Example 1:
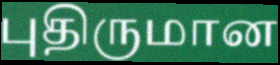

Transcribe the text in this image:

புதிருமான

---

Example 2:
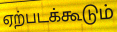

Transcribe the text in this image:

ஏற்படக்கூடும்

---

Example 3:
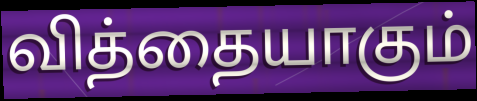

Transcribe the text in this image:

வித்தையாகும்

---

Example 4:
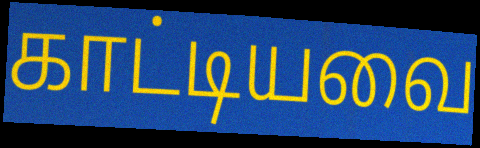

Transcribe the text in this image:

காட்டியவை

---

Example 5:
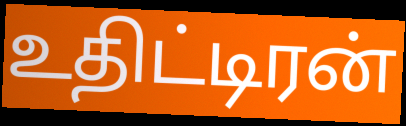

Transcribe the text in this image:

உதிட்டிரன்